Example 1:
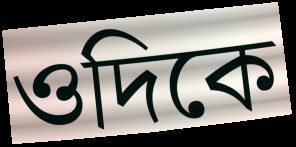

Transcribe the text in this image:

ওদিকে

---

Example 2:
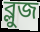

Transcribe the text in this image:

ব্লুজ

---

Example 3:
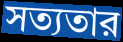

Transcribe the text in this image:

সত্যতার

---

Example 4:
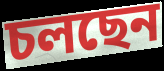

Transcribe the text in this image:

চলছেন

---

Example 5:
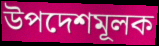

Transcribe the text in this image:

উপদেশমূলক